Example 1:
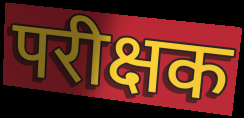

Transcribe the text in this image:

परीक्षक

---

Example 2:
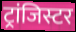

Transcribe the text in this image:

ट्रांजिस्टर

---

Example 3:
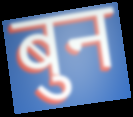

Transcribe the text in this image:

बुन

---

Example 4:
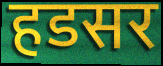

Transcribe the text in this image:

हडसर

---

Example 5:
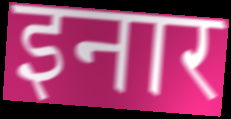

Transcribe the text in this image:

इनार